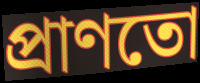
প্রাণতো